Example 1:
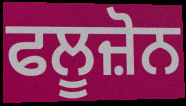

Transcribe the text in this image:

ਫਲੂਜ਼ੋਨ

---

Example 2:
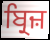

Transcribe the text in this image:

ਬ੍ਰਿਜ਼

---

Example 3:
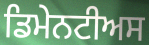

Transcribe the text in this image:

ਡਿਮੇਨਟੀਅਸ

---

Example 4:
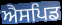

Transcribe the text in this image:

ਐਸਪਿਡ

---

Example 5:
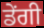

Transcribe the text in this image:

ਡੇਂਗੀ